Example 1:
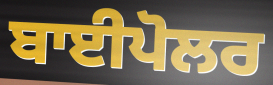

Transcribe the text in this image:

ਬਾਈਪੋਲਰ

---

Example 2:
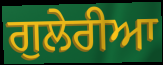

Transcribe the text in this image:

ਗੁਲੇਰੀਆ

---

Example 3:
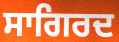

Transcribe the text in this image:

ਸਾਗਿਰਦ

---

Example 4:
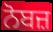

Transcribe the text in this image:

ਨੋਬਜ਼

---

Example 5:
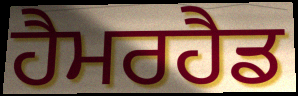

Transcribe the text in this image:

ਹੈਮਰਹੈਡ